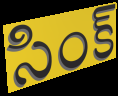
సింక్